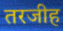
तरजीह